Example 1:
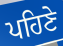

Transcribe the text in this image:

ਪਹਿਣੇ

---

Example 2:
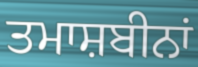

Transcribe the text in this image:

ਤਮਾਸ਼ਬੀਨਾਂ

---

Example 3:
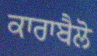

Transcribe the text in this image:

ਕਾਰਾਬੈਲੋ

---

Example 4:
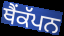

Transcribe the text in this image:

ਥੈਂਕੱਪਨ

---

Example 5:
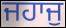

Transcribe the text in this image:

ਜਹਾਜੁ